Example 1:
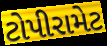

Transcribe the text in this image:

ટોપીરામેટ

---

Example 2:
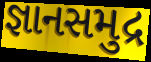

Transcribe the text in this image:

જ્ઞાનસમુદ્ર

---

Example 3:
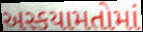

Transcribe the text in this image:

અસ્કયામતોમાં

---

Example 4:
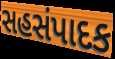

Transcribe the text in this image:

સહસંપાદક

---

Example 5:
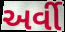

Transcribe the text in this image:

અર્વી